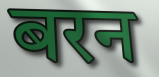
बरन